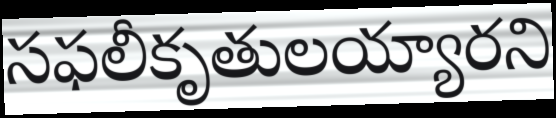
సఫలీకృతులయ్యారని